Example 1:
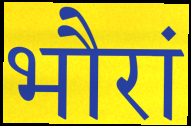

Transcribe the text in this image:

भौरां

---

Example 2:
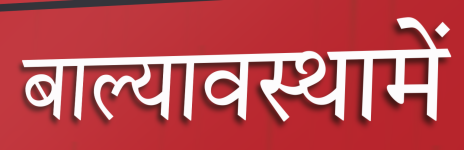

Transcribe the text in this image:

बाल्यावस्थामें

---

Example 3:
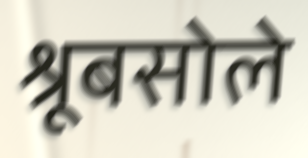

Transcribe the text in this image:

श्रूबसोले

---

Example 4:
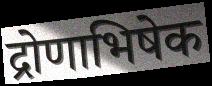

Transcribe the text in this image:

द्रोणाभिषेक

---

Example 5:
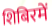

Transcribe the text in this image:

शिबिरमें